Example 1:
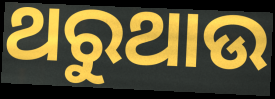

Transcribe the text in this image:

ଥରୁଥାଉ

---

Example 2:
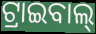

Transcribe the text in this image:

ଟ୍ରାଇବାଲ୍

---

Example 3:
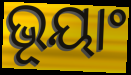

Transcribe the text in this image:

ଭୂୟାଂ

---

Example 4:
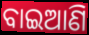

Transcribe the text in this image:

ବାଇଆଣି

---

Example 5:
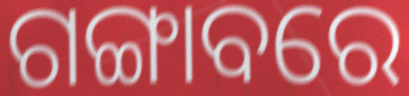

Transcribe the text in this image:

ଗଙ୍ଗାବରେ